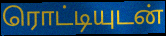
ரொட்டியுடன்